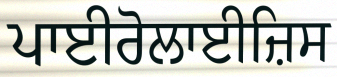
ਪਾਈਰੋਲਾਈਜ਼ਿਸ